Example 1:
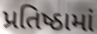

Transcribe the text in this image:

પ્રતિષ્ઠામાં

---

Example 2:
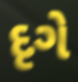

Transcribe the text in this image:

દૃગે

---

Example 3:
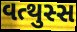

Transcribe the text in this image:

વત્થુસ્સ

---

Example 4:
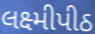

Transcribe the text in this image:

લક્ષ્મીપીઠ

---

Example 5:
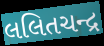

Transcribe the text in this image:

લલિતચન્દ્ર